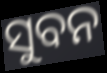
ସୁବନ